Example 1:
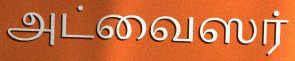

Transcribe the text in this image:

அட்வைஸர்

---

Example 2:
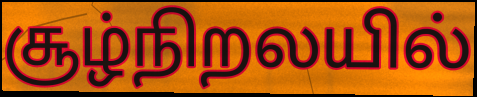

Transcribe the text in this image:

சூழ்நிறலயில்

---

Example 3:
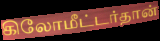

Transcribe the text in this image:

கிலோமீட்டர்தான்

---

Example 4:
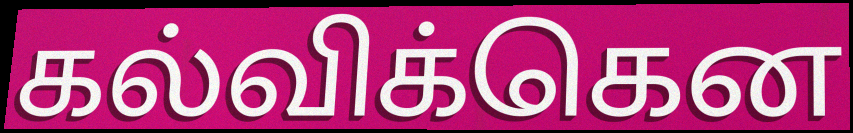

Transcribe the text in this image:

கல்விக்கென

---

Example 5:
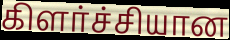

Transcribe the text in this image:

கிளர்ச்சியான